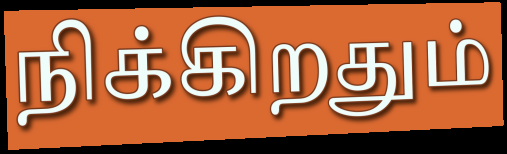
நிக்கிறதும்